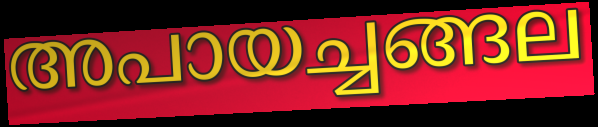
അപായച്ചങ്ങല